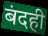
बंदही